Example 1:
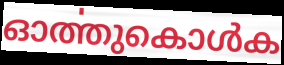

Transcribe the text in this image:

ഓൎത്തുകൊൾക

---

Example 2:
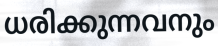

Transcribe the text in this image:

ധരിക്കുന്നവനും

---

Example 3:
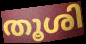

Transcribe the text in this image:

തൂശി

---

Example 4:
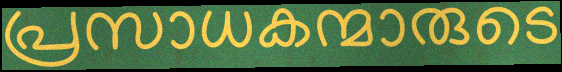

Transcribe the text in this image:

പ്രസാധകന്മാരുടെ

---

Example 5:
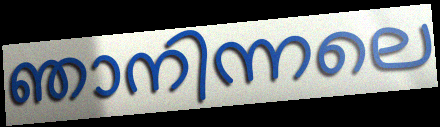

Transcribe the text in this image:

ഞാനിന്നലെ